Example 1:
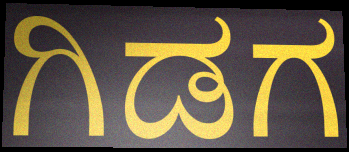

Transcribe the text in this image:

ಗಿಡಗ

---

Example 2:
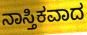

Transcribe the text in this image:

ನಾಸ್ತಿಕವಾದ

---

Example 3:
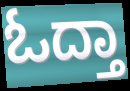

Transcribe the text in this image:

ಓದ್ತಾ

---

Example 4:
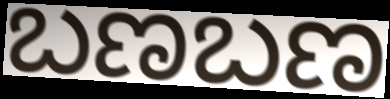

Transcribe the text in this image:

ಬಣಬಣ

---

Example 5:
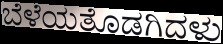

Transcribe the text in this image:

ಬೆಳೆಯತೊಡಗಿದಳು